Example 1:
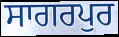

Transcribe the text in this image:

ਸਾਗਰਪੁਰ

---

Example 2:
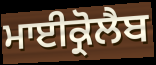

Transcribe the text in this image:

ਮਾਈਕ੍ਰੋਲੈਬ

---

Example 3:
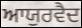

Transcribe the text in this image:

ਆਯੁਰਵੈਦ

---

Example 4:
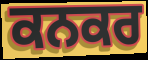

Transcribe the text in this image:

ਕਨਕਰ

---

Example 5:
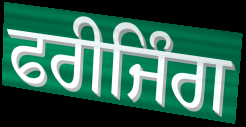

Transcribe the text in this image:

ਫਰੀਜਿੰਗ